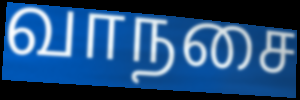
வாநசை